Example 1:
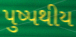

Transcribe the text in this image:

પુષ્પથીય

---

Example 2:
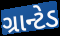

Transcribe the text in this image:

ગ્રાન્ટેડ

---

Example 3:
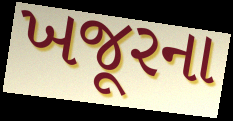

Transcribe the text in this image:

ખજૂરના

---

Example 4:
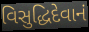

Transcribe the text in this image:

વિસુદ્ધિદેવાનં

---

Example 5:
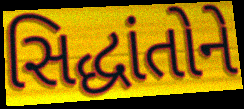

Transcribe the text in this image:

સિદ્ધાંતોને